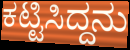
ಕಟ್ಟಿಸಿದ್ದನು